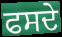
ਫਸਦੇ